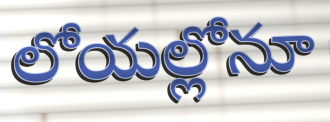
లోయల్లోనూ